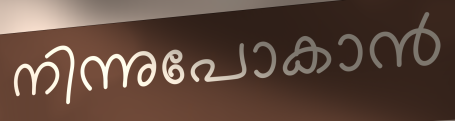
നിന്നുപോകാൻ